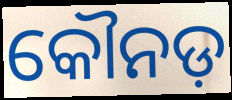
କୌନଡ଼